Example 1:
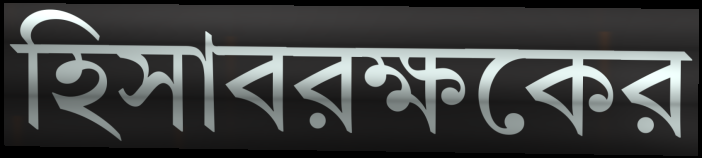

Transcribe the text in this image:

হিসাবরক্ষকের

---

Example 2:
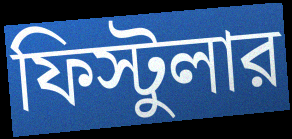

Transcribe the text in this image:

ফিস্টুলার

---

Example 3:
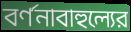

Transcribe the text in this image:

বর্ণনাবাহুল্যের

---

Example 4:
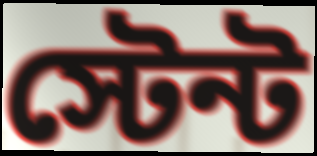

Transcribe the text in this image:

স্টেন্ট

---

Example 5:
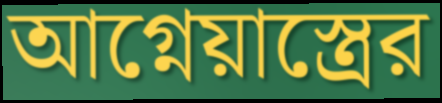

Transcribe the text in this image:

আগ্নেয়াস্ত্রের